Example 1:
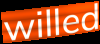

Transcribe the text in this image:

willed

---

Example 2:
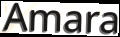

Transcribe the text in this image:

Amara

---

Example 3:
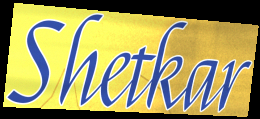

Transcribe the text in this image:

Shetkar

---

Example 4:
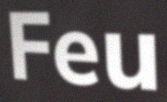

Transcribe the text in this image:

Feu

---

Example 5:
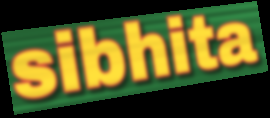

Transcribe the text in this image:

sibhita